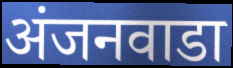
अंजनवाडा